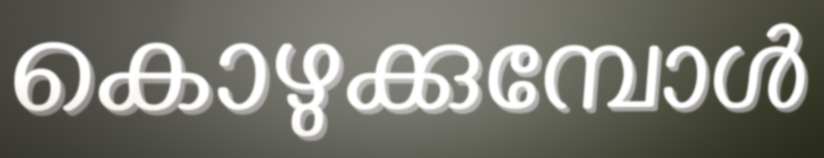
കൊഴുക്കുമ്പോൾ